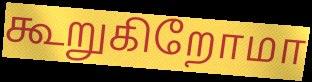
கூறுகிறோமா